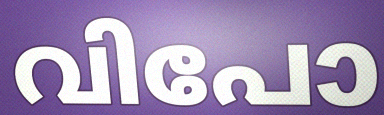
വിപോ